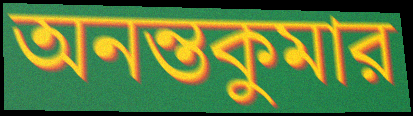
অনন্তকুমার